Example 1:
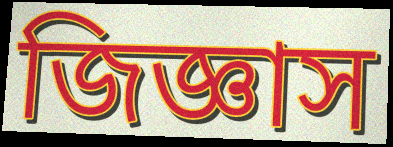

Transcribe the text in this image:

জিজ্ঞাস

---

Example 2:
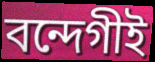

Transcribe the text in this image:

বন্দেগীই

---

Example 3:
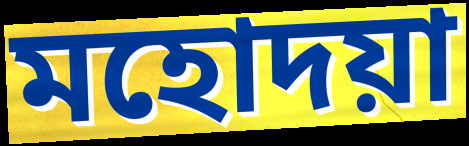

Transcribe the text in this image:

মহোদয়া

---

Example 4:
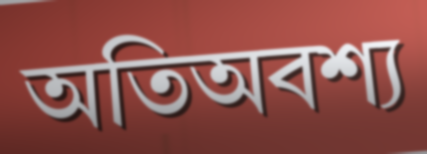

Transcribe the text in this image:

অতিঅবশ্য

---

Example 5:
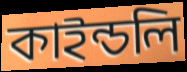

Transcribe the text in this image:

কাইন্ডলি